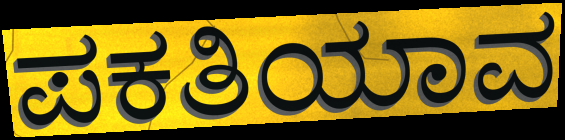
ಪಕತಿಯಾವ